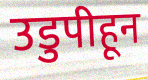
उडुपीहून